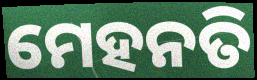
ମେହନତି